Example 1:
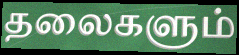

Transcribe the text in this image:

தலைகளும்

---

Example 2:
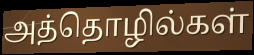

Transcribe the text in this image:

அத்தொழில்கள்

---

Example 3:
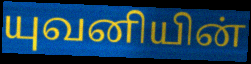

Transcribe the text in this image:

யுவனியின்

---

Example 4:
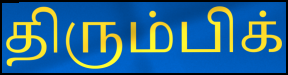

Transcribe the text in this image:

திரும்பிக்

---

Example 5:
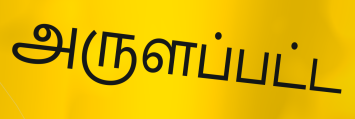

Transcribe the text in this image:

அருளப்பட்ட